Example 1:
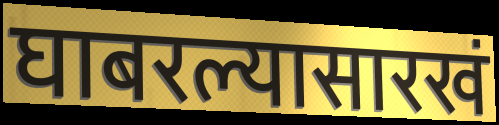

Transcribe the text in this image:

घाबरल्यासारखं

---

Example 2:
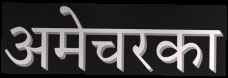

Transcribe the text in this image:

अमेचरका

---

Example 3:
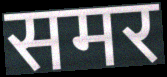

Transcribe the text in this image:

समर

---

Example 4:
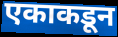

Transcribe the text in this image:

एकाकडून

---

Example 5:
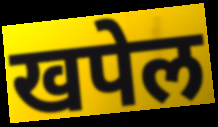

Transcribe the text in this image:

खपेल